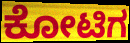
ಕೋಟಿಗ